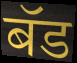
बॅड